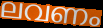
ലവണം